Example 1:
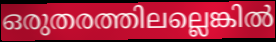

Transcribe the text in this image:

ഒരുതരത്തിലല്ലെങ്കിൽ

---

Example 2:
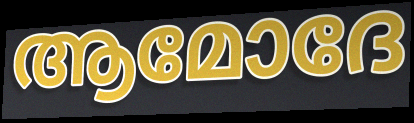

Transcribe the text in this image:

ആമോദേ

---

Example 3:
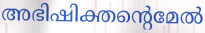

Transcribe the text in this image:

അഭിഷിക്തന്റെമേൽ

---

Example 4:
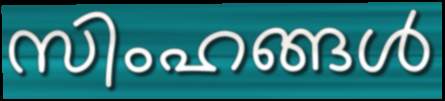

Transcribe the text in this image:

സിംഹങ്ങൾ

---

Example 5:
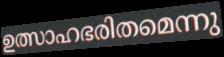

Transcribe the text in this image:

ഉത്സാഹഭരിതമെന്നു